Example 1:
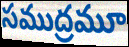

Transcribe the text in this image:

సముద్రమూ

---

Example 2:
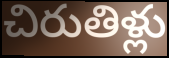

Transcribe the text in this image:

చిరుతిళ్లు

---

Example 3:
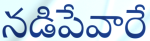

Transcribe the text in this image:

నడిపేవారే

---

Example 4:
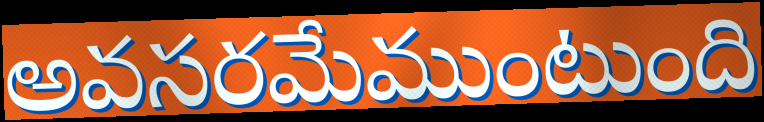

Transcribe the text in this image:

అవసరమేముంటుంది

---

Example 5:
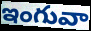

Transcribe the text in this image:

ఇంగువా